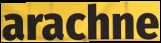
arachne